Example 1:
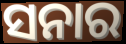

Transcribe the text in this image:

ସନାର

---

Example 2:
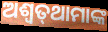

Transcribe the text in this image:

ଅଶ୍ୱତ୍‌ଥାମାଙ୍କ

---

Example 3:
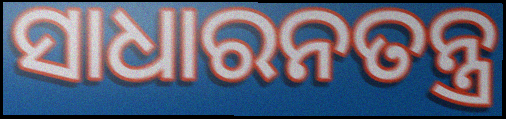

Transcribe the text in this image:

ସାଧାରନତନ୍ତ୍ର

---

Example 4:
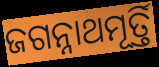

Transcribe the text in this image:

ଜଗନ୍ନାଥମୂର୍ତ୍ତି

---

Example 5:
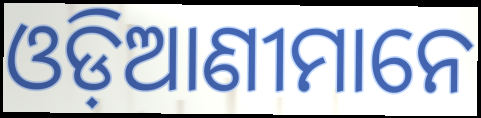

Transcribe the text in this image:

ଓଡ଼ିଆଣୀମାନେ